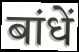
बांधें